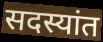
सदस्यांत